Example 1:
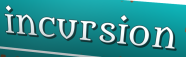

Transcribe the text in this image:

incursion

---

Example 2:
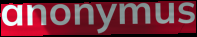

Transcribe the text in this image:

anonymus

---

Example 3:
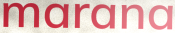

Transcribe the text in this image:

marana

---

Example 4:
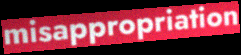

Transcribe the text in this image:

misappropriation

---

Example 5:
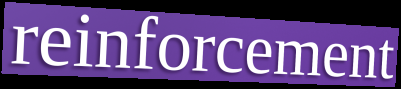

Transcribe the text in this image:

reinforcement